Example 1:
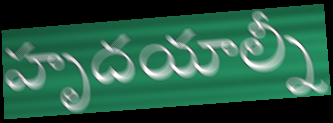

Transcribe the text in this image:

హృదయాల్నీ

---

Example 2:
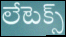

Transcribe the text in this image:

లేటెక్స్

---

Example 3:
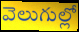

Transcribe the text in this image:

వెలుగుల్లో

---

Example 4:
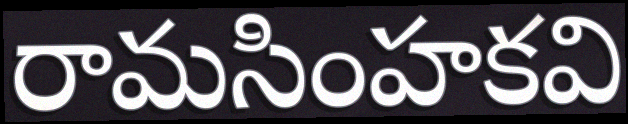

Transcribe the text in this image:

రామసింహకవి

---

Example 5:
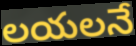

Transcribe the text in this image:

లయలనే